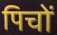
पिचों